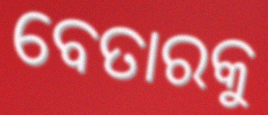
ବେତାରକୁ